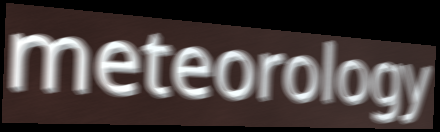
meteorology